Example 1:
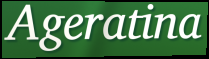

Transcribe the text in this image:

Ageratina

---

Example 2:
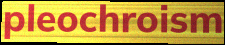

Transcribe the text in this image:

pleochroism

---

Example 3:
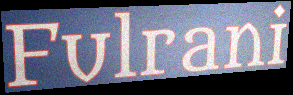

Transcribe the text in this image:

Fulrani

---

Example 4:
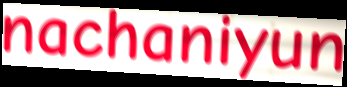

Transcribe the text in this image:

nachaniyun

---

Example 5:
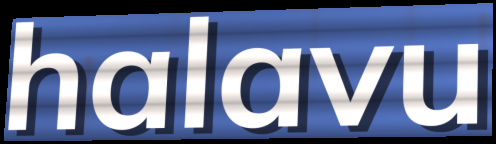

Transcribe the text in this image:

halavu